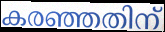
കരഞ്ഞതിന്